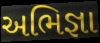
અભિજ્ઞા